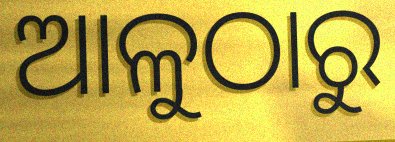
ଆଳୁଠାରୁ